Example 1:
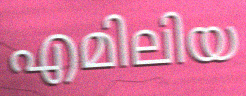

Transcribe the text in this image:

എമിലിയ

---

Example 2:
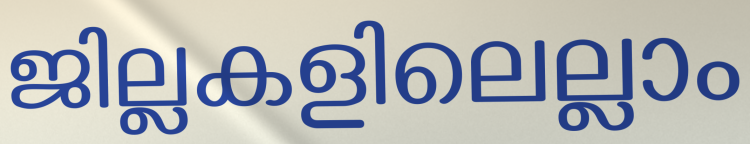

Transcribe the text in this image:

ജില്ലകളിലെല്ലാം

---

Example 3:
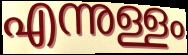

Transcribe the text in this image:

എന്നുള്ളം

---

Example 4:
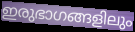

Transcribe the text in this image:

ഇരുഭാഗങ്ങളിലും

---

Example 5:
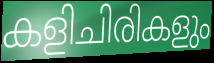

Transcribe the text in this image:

കളിചിരികളും